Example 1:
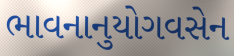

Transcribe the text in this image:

ભાવનાનુયોગવસેન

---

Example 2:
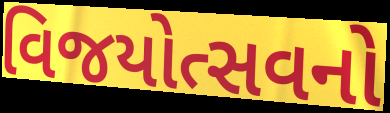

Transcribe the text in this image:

વિજયોત્સવનો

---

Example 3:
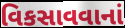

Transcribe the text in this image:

વિકસાવવાનાં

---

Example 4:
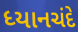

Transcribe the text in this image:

ધ્યાનચંદે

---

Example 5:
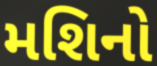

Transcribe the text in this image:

મશિનો